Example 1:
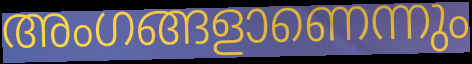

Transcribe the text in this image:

അംഗങ്ങളാണെന്നും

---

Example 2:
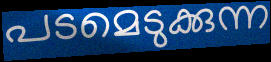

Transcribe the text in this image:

പടമെടുക്കുന്ന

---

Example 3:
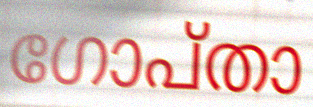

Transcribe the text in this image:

ഗോപ്താ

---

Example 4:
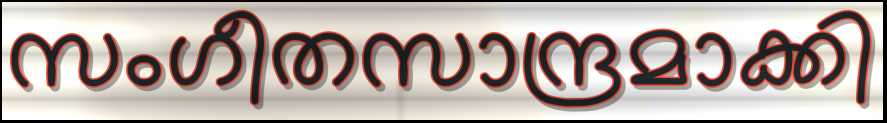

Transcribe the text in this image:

സംഗീതസാന്ദ്രമാക്കി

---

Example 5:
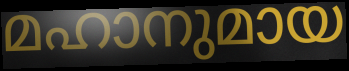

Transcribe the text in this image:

മഹാനുമായ